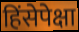
हिंसेपेक्षा